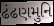
ઢંઢણમુનિ